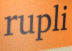
rupli